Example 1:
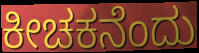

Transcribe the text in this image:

ಕೀಚಕನೆಂದು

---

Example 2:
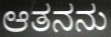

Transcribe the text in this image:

ಆತನನು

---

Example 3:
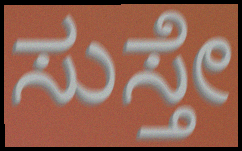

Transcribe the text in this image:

ಸುಸ್ತೇ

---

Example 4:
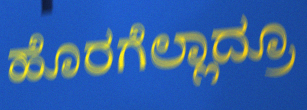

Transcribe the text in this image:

ಹೊರಗೆಲ್ಲಾದ್ರೂ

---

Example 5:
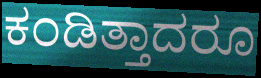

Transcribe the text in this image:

ಕಂಡಿತ್ತಾದರೂ